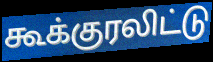
கூக்குரலிட்டு